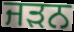
ਜੜਨ